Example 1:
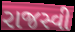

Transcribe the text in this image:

રાજસ્વી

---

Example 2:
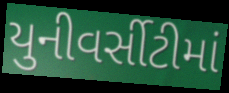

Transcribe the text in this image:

યુનીવર્સીટીમાં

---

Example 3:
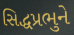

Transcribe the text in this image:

સિદ્ધપ્રભુને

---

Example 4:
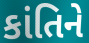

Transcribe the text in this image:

કાંતિને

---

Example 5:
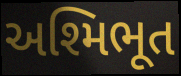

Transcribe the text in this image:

અશ્મિભૂત